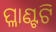
ପ୍ଳାଣ୍ଟଟି